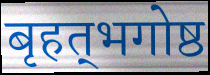
बृहत्‌भगोष्ठ